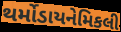
થર્મોડાયનેમિકલી